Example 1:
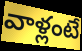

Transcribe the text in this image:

వాళ్లంటే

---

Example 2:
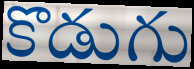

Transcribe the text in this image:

కొడుగు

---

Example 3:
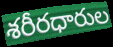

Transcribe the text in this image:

శరీరధారుల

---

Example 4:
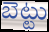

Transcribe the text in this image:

బెట్టు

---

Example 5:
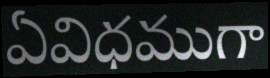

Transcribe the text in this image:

ఏవిధముగా